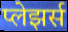
प्लेझर्स